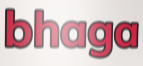
bhaga